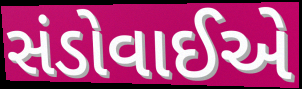
સંડોવાઈએ